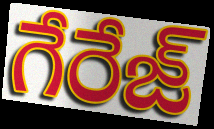
గేరేజ్